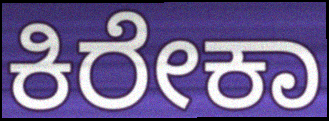
ಕಿರೇಕಾ